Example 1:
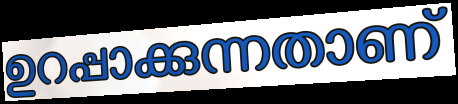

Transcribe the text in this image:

ഉറപ്പാക്കുന്നതാണ്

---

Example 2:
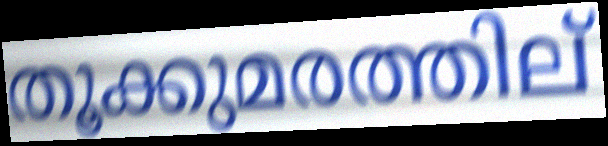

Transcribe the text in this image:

തൂക്കുമരത്തില്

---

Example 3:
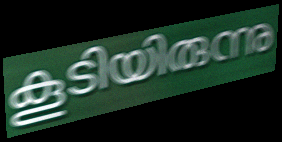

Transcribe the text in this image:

കൂടിയിരുന്നു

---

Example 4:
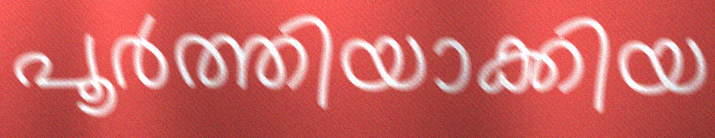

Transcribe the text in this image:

പൂർത്തിയാക്കിയ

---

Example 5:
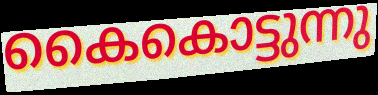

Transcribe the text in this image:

കൈകൊട്ടുന്നു